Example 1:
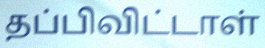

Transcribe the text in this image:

தப்பிவிட்டாள்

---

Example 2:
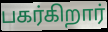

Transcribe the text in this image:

பகர்கிறார்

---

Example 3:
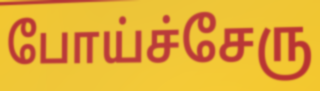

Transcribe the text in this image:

போய்ச்சேரு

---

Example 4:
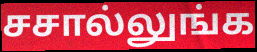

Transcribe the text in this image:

சசால்லுங்க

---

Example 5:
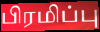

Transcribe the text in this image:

பிரமிப்பு